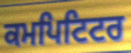
ਕਮਪਿਟਿਟਰ